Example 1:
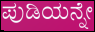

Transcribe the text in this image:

ಪುಡಿಯನ್ನೇ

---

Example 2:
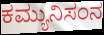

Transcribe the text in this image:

ಕಮ್ಯುನಿಸಂನ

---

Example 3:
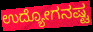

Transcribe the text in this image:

ಉದ್ಯೋಗನಷ್ಟ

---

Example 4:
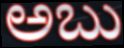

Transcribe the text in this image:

ಅಬು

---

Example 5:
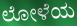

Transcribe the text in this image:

ಲೋಳೆಯ